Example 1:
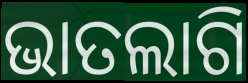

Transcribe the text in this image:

ଭାତଲାଗି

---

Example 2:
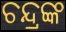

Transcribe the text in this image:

ଚନ୍ଦ୍ରଙ୍କ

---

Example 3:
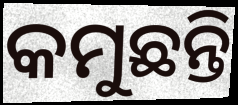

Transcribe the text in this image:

କମୁଛନ୍ତି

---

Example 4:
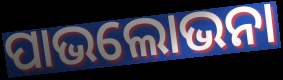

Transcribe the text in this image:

ପାଭଲୋଭନା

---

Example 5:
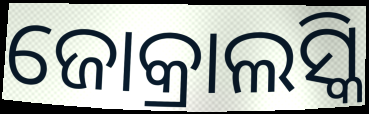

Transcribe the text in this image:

ଜୋକ୍ରାଲସ୍କି